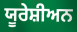
ਯੂਰੇਸ਼ੀਅਨ